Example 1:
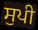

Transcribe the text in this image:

ਸੁਪੀ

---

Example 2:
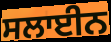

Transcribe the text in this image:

ਸਲਾਈਨ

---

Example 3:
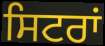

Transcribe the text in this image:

ਸਿਟਰਾਂ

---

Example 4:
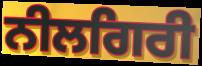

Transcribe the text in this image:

ਨੀਲਗਿਰੀ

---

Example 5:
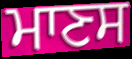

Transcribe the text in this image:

ਮਾਣਸ